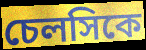
চেলসিকে